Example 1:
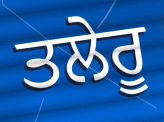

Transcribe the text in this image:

ਤਲੇਰੂ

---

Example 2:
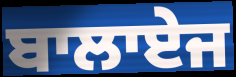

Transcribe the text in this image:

ਬਾਲਾਏਜ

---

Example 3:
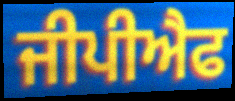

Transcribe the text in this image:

ਜੀਪੀਐਫ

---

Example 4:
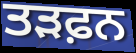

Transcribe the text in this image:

ਤੜਫ਼ਨ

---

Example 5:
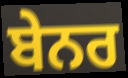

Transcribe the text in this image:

ਬੇਨਰ